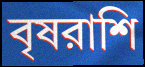
বৃষরাশি